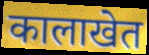
कालाखेत